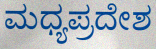
ಮಧ್ಯಪ್ರದೇಶ